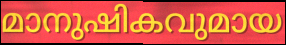
മാനുഷികവുമായ